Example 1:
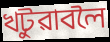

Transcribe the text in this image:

খটুৱাবলৈ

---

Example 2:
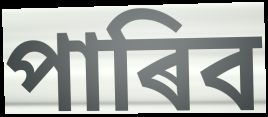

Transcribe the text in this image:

পাৰিব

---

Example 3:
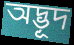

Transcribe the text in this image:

অদ্ভূদ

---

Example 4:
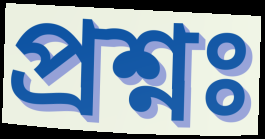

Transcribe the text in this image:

প্ৰশ্নঃ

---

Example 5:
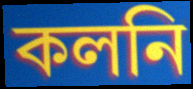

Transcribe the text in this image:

কলনি